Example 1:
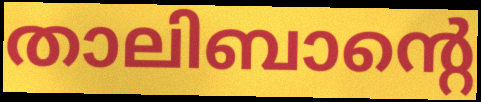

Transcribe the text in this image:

താലിബാന്റെ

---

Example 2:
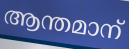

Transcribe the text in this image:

ആന്തമാന്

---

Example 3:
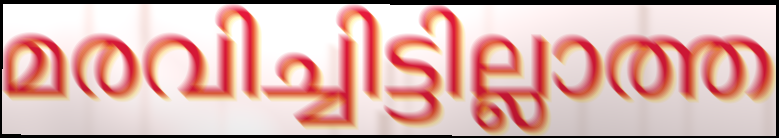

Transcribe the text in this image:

മരവിച്ചിട്ടില്ലാത്ത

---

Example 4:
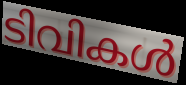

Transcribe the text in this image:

ടിവികൾ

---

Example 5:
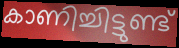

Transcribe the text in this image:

കാണിച്ചിട്ടുണ്ട്